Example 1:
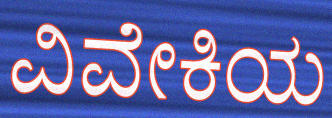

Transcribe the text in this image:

ವಿವೇಕಿಯ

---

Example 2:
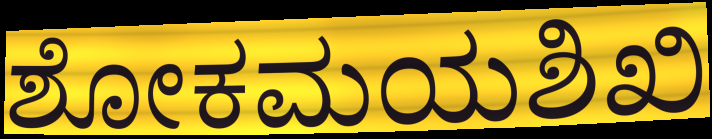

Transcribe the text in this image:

ಶೋಕಮಯಶಿಖಿ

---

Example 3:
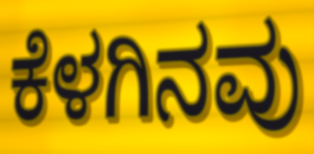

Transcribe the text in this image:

ಕೆಳಗಿನವು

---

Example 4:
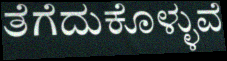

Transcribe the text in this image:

ತೆಗೆದುಕೊಳ್ಳುವೆ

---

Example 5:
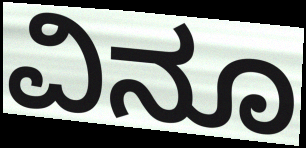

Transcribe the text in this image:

ವಿನೂ